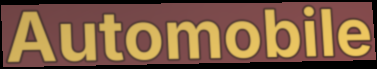
Automobile